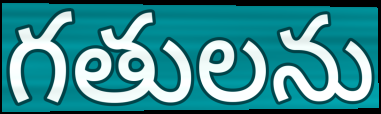
గతులను